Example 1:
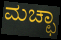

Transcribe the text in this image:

ಮಚ್ಛಾ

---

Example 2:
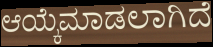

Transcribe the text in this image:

ಆಯ್ಕೆಮಾಡಲಾಗಿದೆ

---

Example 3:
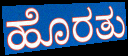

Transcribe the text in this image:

ಹೊರತು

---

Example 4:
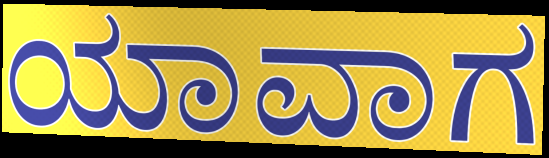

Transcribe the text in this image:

ಯಾವಾಗ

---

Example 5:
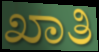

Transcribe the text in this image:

ಖಾತಿ